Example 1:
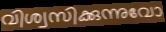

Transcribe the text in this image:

വിശ്വസിക്കുന്നുവോ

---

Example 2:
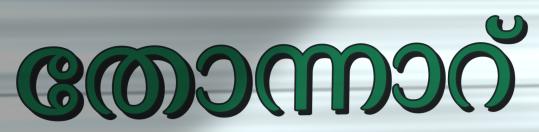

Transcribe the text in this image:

തോന്നാറ്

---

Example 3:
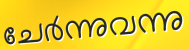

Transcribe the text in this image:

ചേർന്നുവന്നു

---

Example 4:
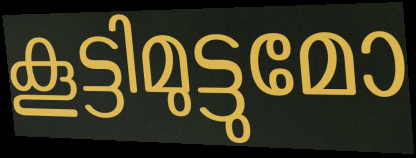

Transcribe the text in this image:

കൂട്ടിമുട്ടുമോ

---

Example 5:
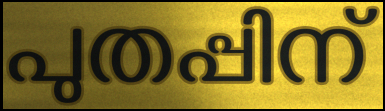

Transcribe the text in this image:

പുതപ്പിന്